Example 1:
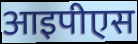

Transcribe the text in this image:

आइपीएस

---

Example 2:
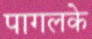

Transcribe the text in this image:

पागलके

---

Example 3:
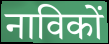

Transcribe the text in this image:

नाविकों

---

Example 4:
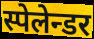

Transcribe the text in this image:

स्पेलेन्डर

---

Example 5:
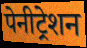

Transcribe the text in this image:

पेनीट्रेशन